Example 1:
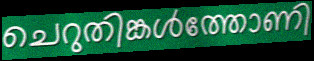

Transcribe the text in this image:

ചെറുതിങ്കൾത്തോണി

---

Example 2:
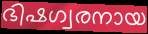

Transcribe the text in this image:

ഭിഷഗ്വരനായ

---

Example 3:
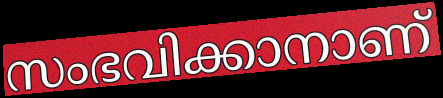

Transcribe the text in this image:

സംഭവിക്കാനാണ്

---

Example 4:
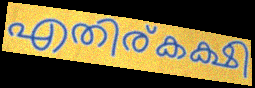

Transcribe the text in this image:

എതിര്കക്ഷി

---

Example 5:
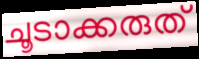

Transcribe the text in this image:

ചൂടാക്കരുത്